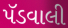
પૅડવાલી